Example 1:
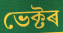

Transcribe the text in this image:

ভেক্টৰ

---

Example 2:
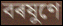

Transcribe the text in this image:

বৰষুণে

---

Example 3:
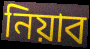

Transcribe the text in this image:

নিয়াব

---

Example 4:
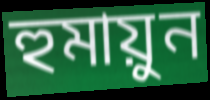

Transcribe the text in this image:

হুমায়ুন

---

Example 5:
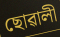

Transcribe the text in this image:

ছোৱালী